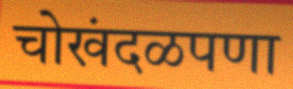
चोखंदळपणा